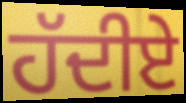
ਹੱਦੀਏ